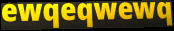
ewqeqwewq